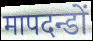
मापदन्डों